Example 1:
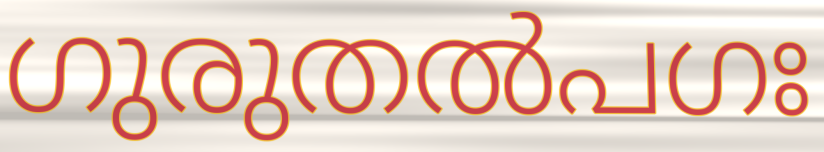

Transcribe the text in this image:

ഗുരുതൽപഗഃ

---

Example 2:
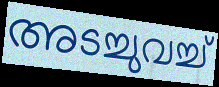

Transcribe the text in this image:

അടച്ചുവച്ച്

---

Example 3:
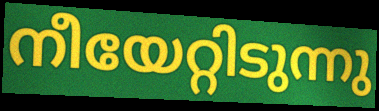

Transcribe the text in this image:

നീയേറ്റിടുന്നു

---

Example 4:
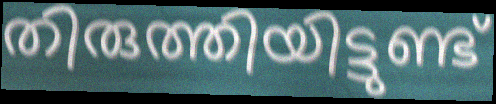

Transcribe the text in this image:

തിരുത്തിയിട്ടുണ്ട്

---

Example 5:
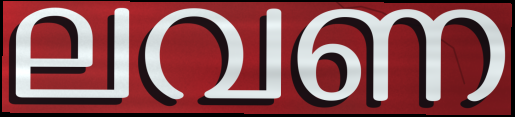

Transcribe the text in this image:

ലവണ